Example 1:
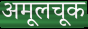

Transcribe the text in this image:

अमूलचूक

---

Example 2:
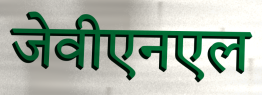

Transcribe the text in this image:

जेवीएनएल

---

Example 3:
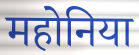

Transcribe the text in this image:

महोनिया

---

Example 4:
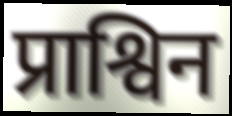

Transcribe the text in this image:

प्राश्विन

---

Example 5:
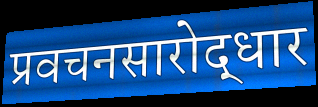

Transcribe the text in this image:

प्रवचनसारोद्धार